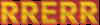
RRERR